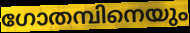
ഗോതമ്പിനെയും